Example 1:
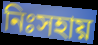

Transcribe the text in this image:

নিঃসহায়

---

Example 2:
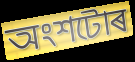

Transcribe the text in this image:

অংশটোৰ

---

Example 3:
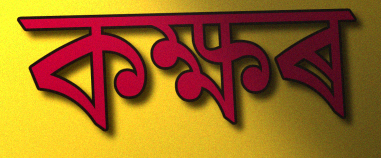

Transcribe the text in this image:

কক্ষৰ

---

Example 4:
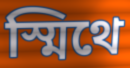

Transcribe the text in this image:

স্মিথে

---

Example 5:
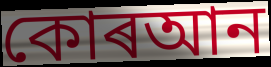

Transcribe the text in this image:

কোৰআন